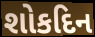
શોકદિન